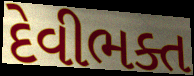
દેવીભક્ત